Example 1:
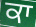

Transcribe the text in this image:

ਕਾ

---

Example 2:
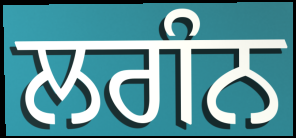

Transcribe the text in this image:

ਲਗੰਨ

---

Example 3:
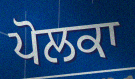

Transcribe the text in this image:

ਪੋਲਕਾ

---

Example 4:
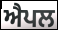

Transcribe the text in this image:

ਐਪਲ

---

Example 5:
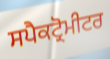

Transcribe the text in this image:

ਸਪੈਕਟ੍ਰੋਮੀਟਰ